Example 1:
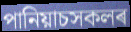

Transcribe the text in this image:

পানিয়াচসকলৰ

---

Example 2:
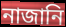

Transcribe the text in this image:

নাজানি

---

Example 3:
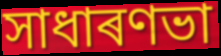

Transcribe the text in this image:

সাধাৰণভা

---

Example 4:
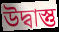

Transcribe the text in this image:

উদ্বাস্তু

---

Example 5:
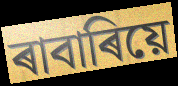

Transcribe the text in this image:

ৰাবাৰিয়ে